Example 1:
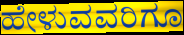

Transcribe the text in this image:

ಹೇಳುವವರಿಗೂ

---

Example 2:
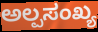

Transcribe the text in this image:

ಅಲ್ಪಸಂಖ್ಯ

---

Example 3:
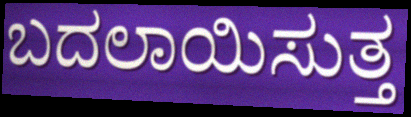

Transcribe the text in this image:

ಬದಲಾಯಿಸುತ್ತ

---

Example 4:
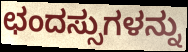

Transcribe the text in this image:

ಛಂದಸ್ಸುಗಳನ್ನು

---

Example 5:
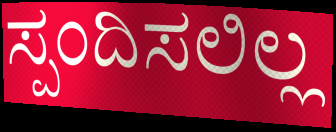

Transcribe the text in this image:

ಸ್ಪಂದಿಸಲಿಲ್ಲ